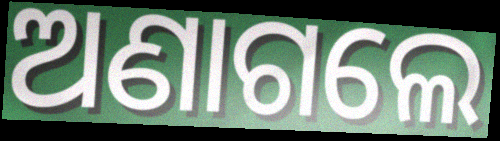
ଅଣାଗଲେ